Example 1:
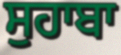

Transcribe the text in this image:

ਸੁਹਾਬਾ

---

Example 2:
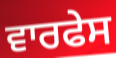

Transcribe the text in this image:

ਵਾਰਫੇਸ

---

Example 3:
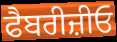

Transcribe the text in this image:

ਫੈਬਰੀਜ਼ੀਓ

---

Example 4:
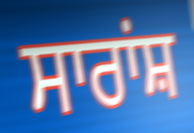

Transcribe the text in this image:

ਸਾਰਾਂਸ਼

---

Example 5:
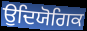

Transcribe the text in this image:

ਉਦਿਯੋਗਿਕ